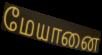
மேயானை